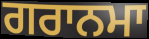
ਗਰਾਨਮਾ